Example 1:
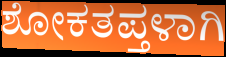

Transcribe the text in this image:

ಶೋಕತಪ್ತಳಾಗಿ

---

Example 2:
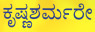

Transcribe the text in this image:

ಕೃಷ್ಣಶರ್ಮರೇ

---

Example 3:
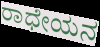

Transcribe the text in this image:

ರಾಧೇಯನ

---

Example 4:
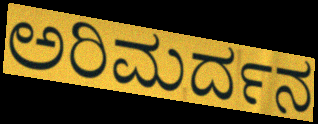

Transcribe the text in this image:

ಅರಿಮರ್ದನ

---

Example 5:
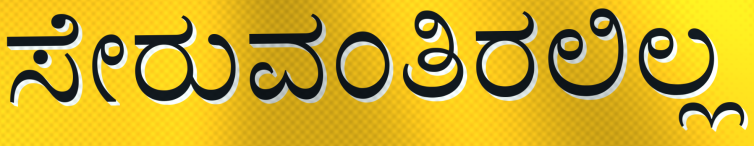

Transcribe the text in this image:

ಸೇರುವಂತಿರಲಿಲ್ಲ